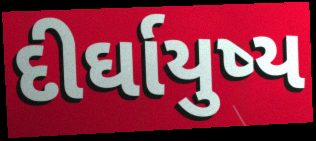
દીર્ઘાયુષ્ય